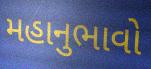
મહાનુભાવો